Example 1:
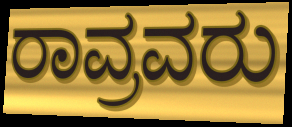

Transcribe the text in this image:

ರಾವ್ರವರು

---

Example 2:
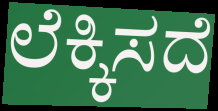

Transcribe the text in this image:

ಲೆಕ್ಕಿಸದೆ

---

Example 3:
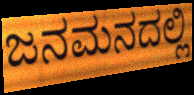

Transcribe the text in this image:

ಜನಮನದಲ್ಲಿ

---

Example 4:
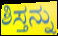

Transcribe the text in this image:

ಶಿಸ್ತನ್ನು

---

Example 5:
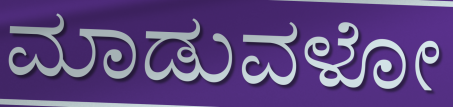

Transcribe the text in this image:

ಮಾಡುವಳೋ